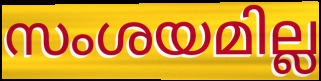
സംശയമില്ല